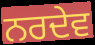
ਨਰਦੇਵ